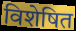
विशेषित